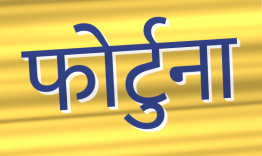
फोर्टुना